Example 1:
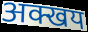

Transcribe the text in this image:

अक्खय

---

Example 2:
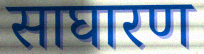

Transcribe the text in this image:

साघारण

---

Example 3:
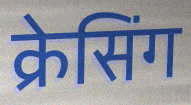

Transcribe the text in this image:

क्रेसिंग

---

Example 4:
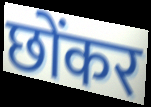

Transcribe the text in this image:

छोंकर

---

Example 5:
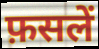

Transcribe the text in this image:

फ़सलें